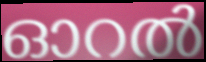
ഓറൽ